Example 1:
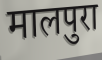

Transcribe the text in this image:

मालपुरा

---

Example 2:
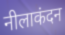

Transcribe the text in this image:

नीलाकंदन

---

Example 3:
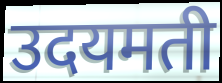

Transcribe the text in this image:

उदयमती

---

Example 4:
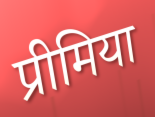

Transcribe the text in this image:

प्रीमिया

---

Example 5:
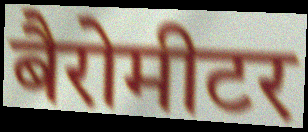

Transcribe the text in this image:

बैरोमीटर